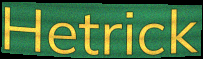
Hetrick